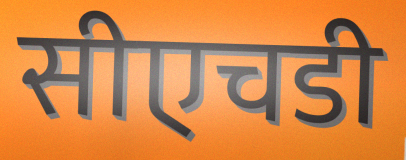
सीएचडी